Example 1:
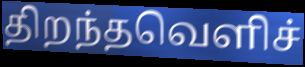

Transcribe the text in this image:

திறந்தவெளிச்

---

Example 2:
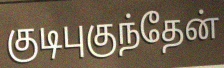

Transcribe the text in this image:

குடிபுகுந்தேன்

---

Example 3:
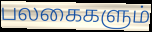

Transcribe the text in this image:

பலகைகளும்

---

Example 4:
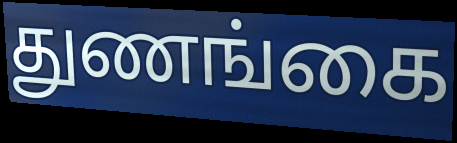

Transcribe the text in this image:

துணங்கை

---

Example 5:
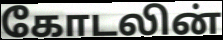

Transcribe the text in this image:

கோடலின்